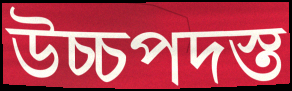
উচ্চপদস্ত